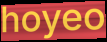
hoyeo